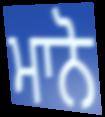
ਮਾਨੋ